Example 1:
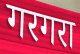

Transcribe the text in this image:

गरगरा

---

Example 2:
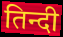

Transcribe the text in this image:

तिन्दी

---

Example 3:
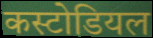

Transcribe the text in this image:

कस्टोडियल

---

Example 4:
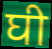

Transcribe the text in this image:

घी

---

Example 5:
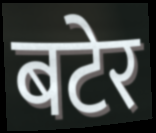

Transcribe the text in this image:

बटेर